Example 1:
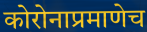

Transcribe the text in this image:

कोरोनाप्रमाणेच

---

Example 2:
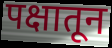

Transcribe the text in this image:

पक्षातून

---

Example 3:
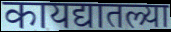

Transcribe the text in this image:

कायद्यातल्या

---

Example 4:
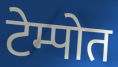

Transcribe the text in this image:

टेम्पोत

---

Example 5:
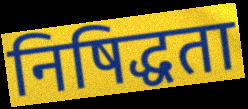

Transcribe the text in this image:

निषिद्धता